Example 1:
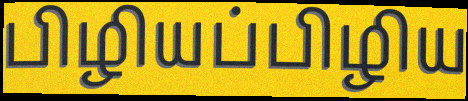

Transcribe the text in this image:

பிழியப்பிழிய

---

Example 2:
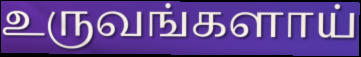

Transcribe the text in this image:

உருவங்களாய்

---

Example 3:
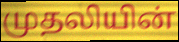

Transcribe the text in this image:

முதலியின்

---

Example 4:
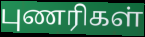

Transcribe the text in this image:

புணரிகள்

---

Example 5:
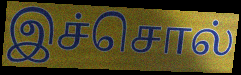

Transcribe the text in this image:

இச்சொல்